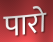
पारो